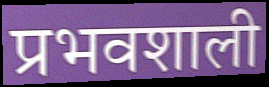
प्रभवशाली